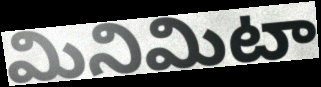
మినిమిటా